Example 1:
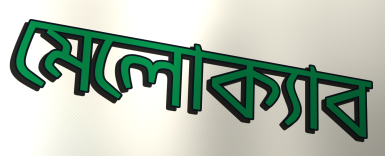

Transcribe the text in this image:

মেলোক্যাব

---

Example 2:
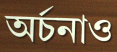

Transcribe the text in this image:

অর্চনাও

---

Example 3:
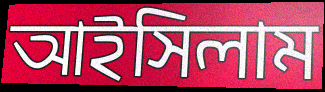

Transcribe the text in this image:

আইসিলাম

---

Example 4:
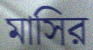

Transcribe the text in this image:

মাসির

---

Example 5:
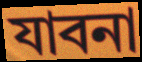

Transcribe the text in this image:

যাবনা